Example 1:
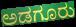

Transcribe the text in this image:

ಅಡಗೂರು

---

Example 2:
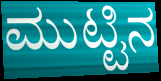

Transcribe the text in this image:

ಮುಟ್ಟಿನ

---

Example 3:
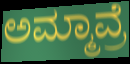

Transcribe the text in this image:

ಅಮ್ಮಾವ್ರೆ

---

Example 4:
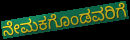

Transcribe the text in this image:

ನೇಮಕಗೊಂಡವರಿಗೆ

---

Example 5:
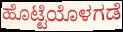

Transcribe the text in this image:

ಹೊಟ್ಟೆಯೊಳಗಡೆ